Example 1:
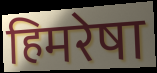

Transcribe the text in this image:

हिमरेषा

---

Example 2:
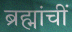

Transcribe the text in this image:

ब्रह्मांचीं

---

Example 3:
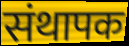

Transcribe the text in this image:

संथापक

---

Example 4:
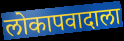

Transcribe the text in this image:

लोकापवादाला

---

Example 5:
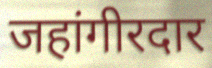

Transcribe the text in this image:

जहांगीरदार